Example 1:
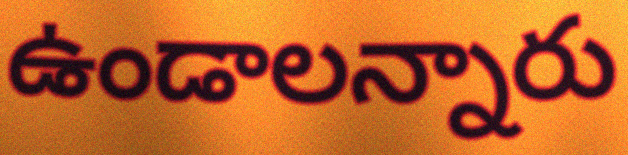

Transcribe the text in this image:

ఉండాలన్నారు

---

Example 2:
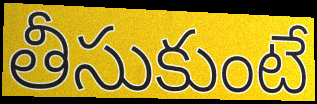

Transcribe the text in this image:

తీసుకుంటే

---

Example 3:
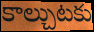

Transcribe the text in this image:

కాల్చుటకు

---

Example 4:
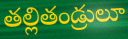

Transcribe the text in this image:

తల్లితండ్రులూ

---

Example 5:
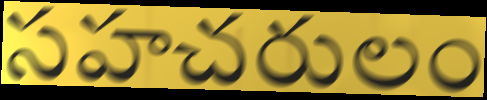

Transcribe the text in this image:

సహచరులం